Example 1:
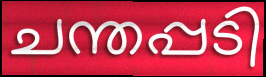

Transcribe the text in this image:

ചന്തപ്പടി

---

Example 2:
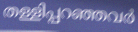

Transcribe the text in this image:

തള്ളിപ്പറഞ്ഞവർ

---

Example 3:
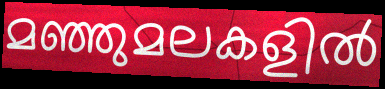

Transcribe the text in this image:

മഞ്ഞുമലകളിൽ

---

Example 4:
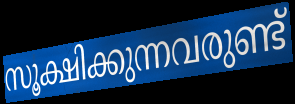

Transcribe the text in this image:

സൂക്ഷിക്കുന്നവരുണ്ട്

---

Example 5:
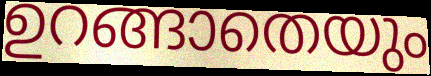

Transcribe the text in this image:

ഉറങ്ങാതെയും